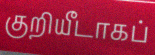
குறியீடாகப்